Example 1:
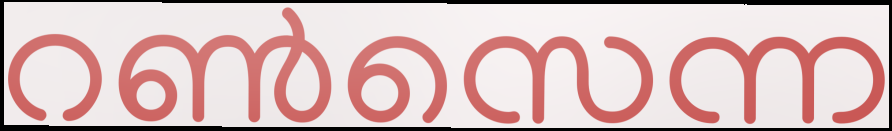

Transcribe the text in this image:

റൺസെന്ന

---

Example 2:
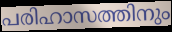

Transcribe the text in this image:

പരിഹാസത്തിനും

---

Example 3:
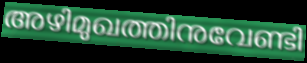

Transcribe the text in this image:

അഴിമുഖത്തിനുവേണ്ടി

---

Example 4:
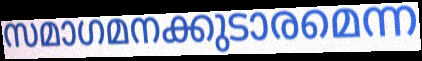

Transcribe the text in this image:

സമാഗമനക്കുടാരമെന്ന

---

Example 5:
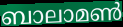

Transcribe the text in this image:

ബാലാമൺ